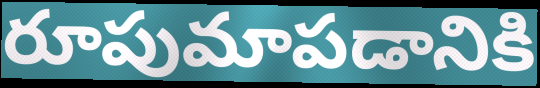
రూపుమాపడానికి